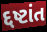
દ્દષ્ટાંત